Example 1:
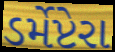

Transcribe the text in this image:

ડર્મેપ્ટેરા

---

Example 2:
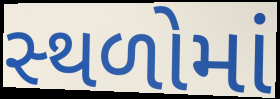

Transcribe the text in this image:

સ્‍થળોમાં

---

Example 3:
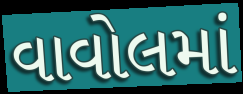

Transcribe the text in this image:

વાવોલમાં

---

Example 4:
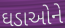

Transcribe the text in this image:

ઘડાઓને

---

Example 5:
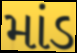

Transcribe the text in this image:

માંડ